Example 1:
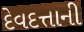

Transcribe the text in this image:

દેવદત્તાની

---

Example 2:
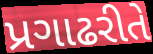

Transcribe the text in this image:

પ્રગાઢરીતે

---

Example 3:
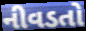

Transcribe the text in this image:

નીવડતો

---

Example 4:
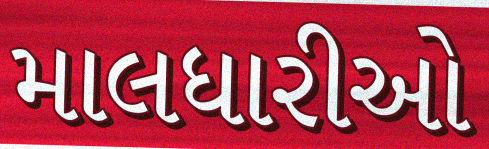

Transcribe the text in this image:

માલધારીઓ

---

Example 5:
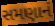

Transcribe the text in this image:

સમણાનં